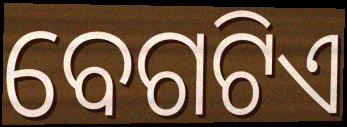
ବେଗଟିଏ